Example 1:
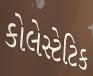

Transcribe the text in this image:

કોલેસ્ટેટિક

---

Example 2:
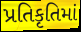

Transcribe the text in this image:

પ્રતિકૃતિમાં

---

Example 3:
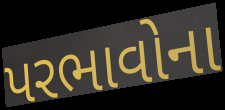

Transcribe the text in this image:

પરભાવોના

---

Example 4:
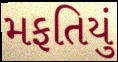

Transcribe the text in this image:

મફતિયું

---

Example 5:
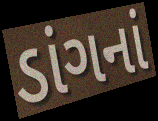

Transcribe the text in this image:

ડાંગનાં